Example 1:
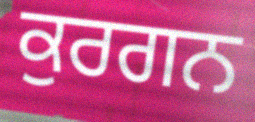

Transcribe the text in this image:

ਕੁਰਗਨ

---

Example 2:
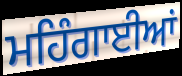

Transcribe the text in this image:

ਮਹਿੰਗਾਈਆਂ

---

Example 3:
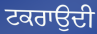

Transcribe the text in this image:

ਟਕਰਾਉਦੀ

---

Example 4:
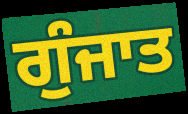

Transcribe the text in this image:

ਗੁੰਜਾਤ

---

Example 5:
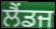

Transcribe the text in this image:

ਲੈਂਡਜ